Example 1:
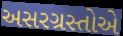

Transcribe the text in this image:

અસરગ્રસ્તોએ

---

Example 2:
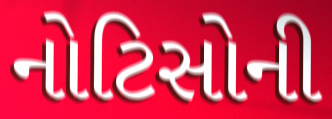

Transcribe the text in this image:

નોટિસોની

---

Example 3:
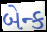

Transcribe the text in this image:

બેન્ક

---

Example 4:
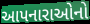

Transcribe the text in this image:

આપનારાઓનો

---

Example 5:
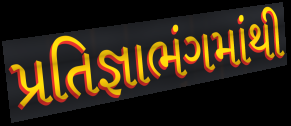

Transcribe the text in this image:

પ્રતિજ્ઞાભંગમાંથી